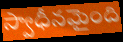
స్వాధీనమైంది